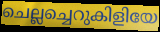
ചെല്ലച്ചെറുകിളിയേ